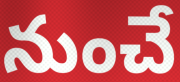
నుంచే